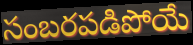
సంబరపడిపోయే